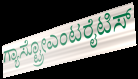
ಗ್ಯಾಸ್ಟ್ರೋಎಂಟರೈಟಿಸ್